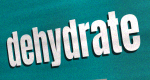
dehydrate